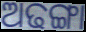
ଅଢଙ୍ଗା